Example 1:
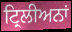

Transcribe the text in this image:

ਟ੍ਰਿਲੀਅਨਾਂ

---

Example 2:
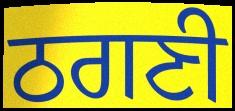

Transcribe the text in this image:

ਠਗਣੀ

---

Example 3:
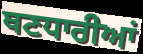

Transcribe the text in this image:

ਥਣਧਾਰੀਆਂ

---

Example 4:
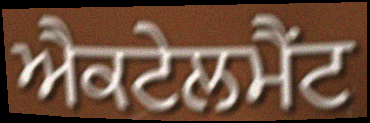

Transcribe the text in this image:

ਐਕਟੇਲਮੈਂਟ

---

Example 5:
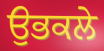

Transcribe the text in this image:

ਉਭਕਲੇ